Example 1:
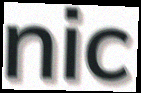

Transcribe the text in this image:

nic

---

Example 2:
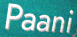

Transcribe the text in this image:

Paani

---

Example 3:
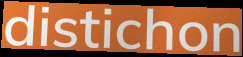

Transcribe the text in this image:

distichon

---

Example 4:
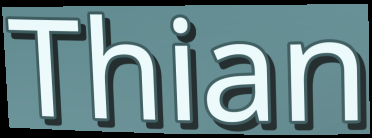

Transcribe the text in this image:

Thian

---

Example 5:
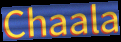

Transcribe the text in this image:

Chaala